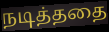
நடித்ததை